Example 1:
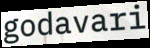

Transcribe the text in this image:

godavari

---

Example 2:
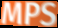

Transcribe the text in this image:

MPS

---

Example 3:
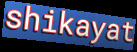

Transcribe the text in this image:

shikayat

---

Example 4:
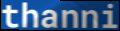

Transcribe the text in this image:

thanni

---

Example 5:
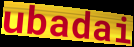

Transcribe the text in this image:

ubadai